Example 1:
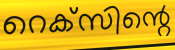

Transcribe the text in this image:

റെക്‌സിന്റെ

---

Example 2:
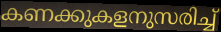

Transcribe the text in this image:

കണക്കുകളനുസരിച്ച്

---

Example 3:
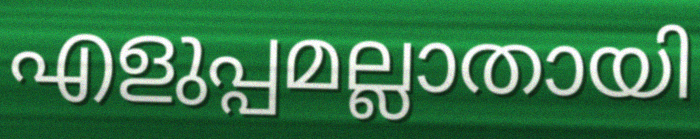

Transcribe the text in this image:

എളുപ്പമല്ലാതായി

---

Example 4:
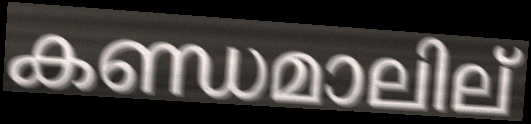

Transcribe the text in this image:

കണ്ഡമാലില്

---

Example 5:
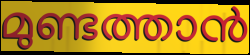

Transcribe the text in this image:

മുണ്ടത്താൻ